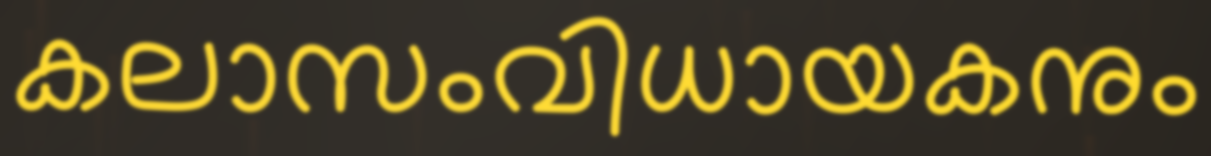
കലാസംവിധായകനും